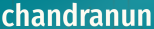
chandranun